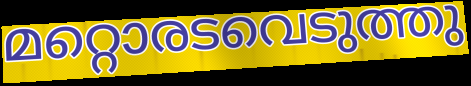
മറ്റൊരടവെടുത്തു